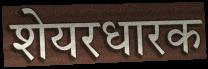
शेयरधारक